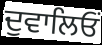
ਦੁਵਾਲਿਓਂ